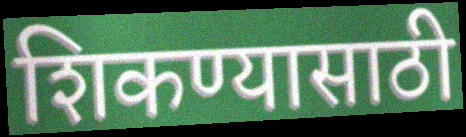
शिकण्यासाठी